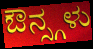
ಔನ್ಸ್ಗಳು